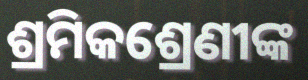
ଶ୍ରମିକଶ୍ରେଣୀଙ୍କ